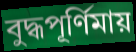
বুদ্ধপূর্ণিমায়